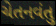
ચેતનવંતુ